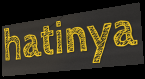
hatinya